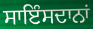
ਸਾਇੰਸਦਾਨਾਂ